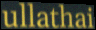
ullathai